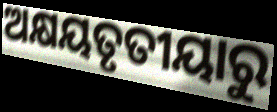
ଅକ୍ଷୟତୃତୀୟାରୁ